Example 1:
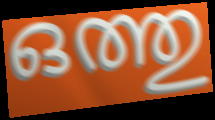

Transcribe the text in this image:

ഒത്തു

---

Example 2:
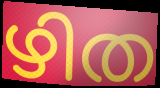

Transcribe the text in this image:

ഴിത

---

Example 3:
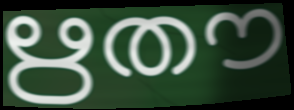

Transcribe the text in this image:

ഋതൗ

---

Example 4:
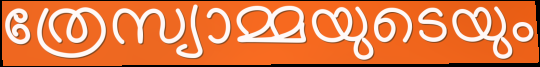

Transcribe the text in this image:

ത്രേസ്യാമ്മയുടെയും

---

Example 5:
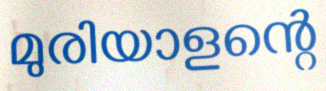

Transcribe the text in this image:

മുരിയാളന്റെ